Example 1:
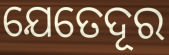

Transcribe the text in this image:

ଯେତେଦୂର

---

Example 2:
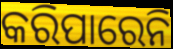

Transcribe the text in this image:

କରିପାରେନି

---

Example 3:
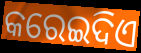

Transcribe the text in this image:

କରେଇଦିଏ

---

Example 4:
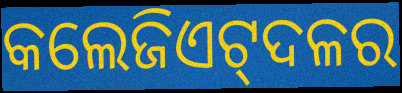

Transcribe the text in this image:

କଲେଜିଏଟ୍‍ଦଳର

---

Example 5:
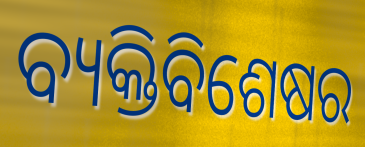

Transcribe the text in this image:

ବ୍ୟକ୍ତିବିଶେଷର